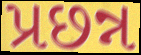
પ્રછન્ન